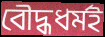
বৌদ্ধধৰ্মই